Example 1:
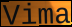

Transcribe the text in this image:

Vima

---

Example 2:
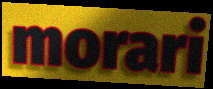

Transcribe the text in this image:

morari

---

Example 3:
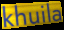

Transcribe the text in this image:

khuila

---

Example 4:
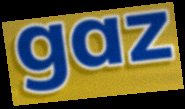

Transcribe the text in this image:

gaz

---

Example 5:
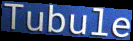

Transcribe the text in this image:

Tubule